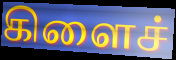
கிளைச்